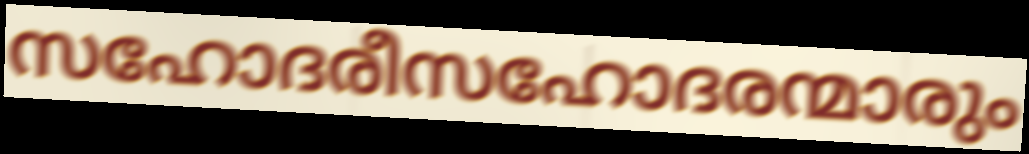
സഹോദരീസഹോദരന്മാരും